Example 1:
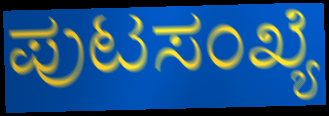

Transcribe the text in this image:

ಪುಟಸಂಖ್ಯೆ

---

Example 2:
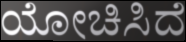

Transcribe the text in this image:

ಯೋಚಿಸಿದೆ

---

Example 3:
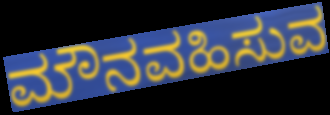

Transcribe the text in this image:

ಮೌನವಹಿಸುವ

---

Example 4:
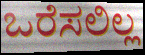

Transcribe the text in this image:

ಒರೆಸಲಿಲ್ಲ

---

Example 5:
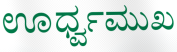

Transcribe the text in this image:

ಊರ್ಧ್ವಮುಖ